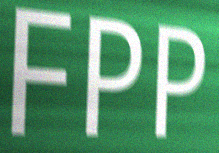
FPP